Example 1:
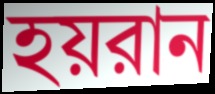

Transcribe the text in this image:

হয়রান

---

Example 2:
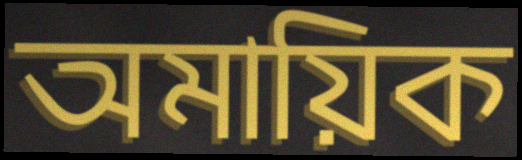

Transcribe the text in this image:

অমায়িক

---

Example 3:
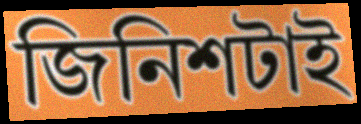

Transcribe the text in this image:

জিনিশটাই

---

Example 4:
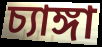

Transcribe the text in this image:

চ্যাঙ্গা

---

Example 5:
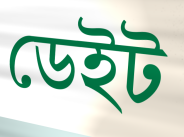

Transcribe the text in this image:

ডেইট